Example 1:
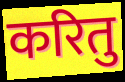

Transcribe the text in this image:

करितु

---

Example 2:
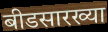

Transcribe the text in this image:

बीडसारख्या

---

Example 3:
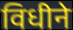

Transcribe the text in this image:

विधीने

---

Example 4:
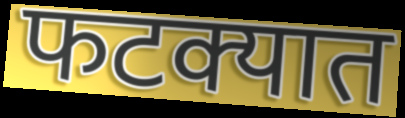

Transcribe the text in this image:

फटक्यात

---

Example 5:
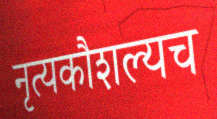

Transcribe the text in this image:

नृत्यकौशल्यच